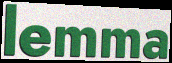
lemma